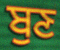
ਬੁਣ